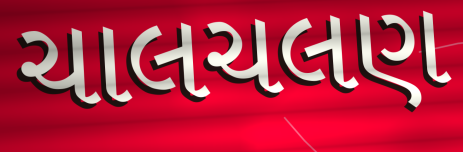
ચાલચલણ